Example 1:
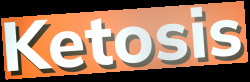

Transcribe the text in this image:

Ketosis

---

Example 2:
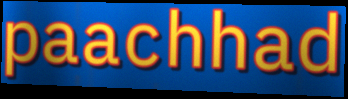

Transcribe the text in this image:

paachhad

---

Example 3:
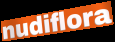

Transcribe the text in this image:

nudiflora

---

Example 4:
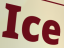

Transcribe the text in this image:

Ice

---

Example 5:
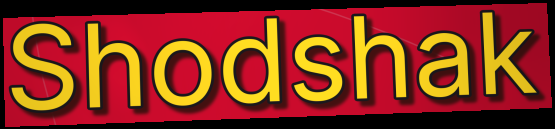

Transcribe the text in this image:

Shodshak